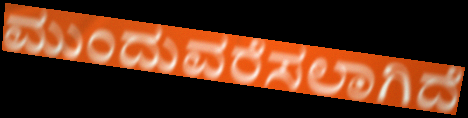
ಮುಂದುವರೆಸಲಾಗಿದೆ